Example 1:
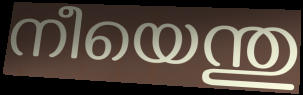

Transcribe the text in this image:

നീയെന്തു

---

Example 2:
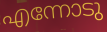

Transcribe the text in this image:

എന്നോടു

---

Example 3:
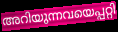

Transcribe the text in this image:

അറിയുന്നവയെപ്പറ്റി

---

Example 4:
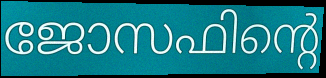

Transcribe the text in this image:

ജോസഫിന്റെ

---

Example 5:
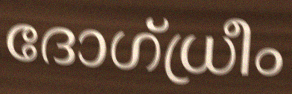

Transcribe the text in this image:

ദോഗ്ധ്രീം